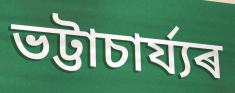
ভট্টাচাৰ্য্যৰ